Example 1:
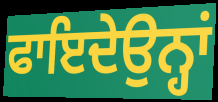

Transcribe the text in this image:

ਫਾਇਦੇਉਨ੍ਹਾਂ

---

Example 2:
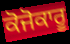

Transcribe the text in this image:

ਕੋਜੋਕਾਰੂ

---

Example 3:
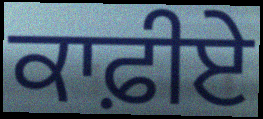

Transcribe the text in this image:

ਕਾਫ਼ੀਏ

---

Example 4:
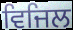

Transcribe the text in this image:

ਵਿਜਿਲ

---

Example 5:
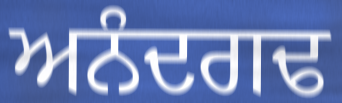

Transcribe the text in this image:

ਅਨੰਦਗਢ